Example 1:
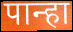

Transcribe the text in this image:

पान्हा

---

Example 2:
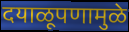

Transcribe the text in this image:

दयाळूपणामुळे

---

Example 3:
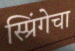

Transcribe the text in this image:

स्प्रिंगेचा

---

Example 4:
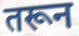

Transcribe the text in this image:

तरून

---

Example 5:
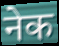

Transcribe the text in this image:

नेक